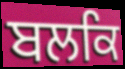
ਬਲਕਿ